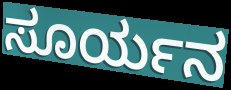
ಸೂರ್ಯನ